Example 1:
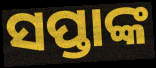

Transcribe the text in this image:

ସପ୍ତାଙ୍କ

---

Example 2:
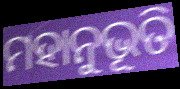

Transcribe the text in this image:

ମହାନୁଭୂତି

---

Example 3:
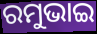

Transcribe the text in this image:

ରମୁଭାଇ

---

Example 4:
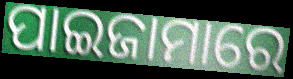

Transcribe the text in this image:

ପାଇଜାମାରେ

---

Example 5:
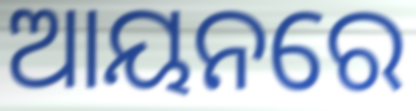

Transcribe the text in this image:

ଆୟନରେ